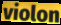
violon